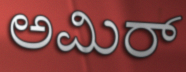
ಅಮಿರ್